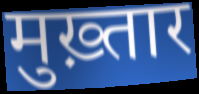
मुख़्तार